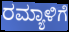
ರಮ್ಯಾಳಿಗೆ